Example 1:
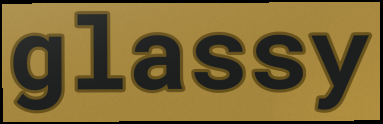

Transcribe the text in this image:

glassy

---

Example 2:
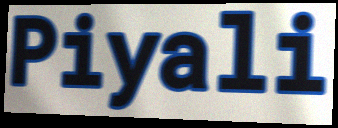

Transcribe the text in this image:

Piyali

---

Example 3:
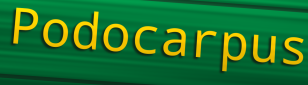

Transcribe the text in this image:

Podocarpus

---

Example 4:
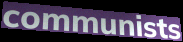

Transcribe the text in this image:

communists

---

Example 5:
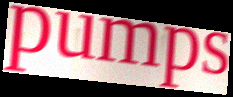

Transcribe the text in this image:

pumps